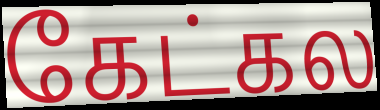
கேட்கல